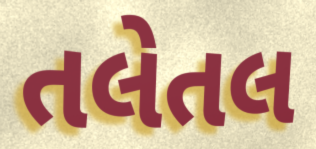
તલેતલ